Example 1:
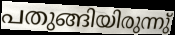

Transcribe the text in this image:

പതുങ്ങിയിരുന്നു്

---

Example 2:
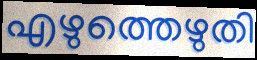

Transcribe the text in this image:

എഴുത്തെഴുതി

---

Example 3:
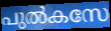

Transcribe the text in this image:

പുൽകസേ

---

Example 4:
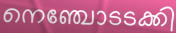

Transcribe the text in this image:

നെഞ്ചോടടക്കി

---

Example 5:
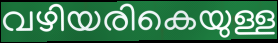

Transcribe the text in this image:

വഴിയരികെയുള്ള